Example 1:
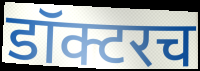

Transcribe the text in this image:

डॉक्टरच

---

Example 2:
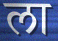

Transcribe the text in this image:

ला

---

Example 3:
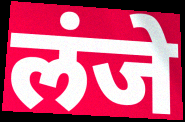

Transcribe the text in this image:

लंजे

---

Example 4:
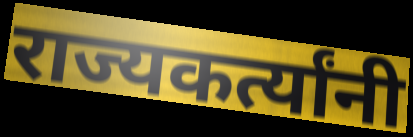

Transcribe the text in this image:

राज्यकर्त्यांनी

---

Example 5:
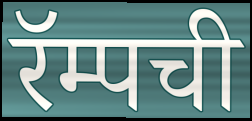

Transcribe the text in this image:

रॅम्पची